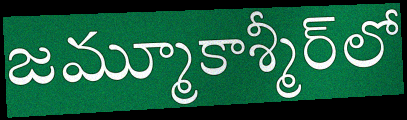
జమ్మూకాశ్మీర్‌లో